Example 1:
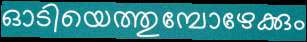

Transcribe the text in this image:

ഓടിയെത്തുമ്പോഴേക്കും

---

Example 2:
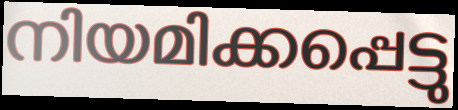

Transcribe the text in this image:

നിയമിക്കപ്പെട്ടു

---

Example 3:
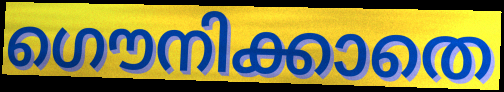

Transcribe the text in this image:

ഗൌനിക്കാതെ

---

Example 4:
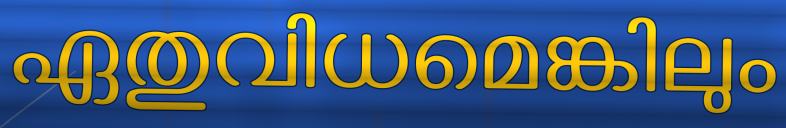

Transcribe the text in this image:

ഏതുവിധമെങ്കിലും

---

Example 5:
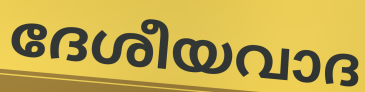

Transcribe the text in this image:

ദേശീയവാദ